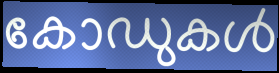
കോഡുകൾ